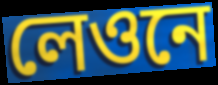
লেওনে